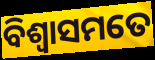
ବିଶ୍ୱାସମତେ